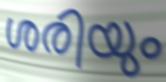
ശരിയും